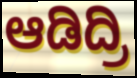
ಆಡಿದ್ರಿ